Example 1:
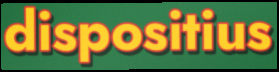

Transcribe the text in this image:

dispositius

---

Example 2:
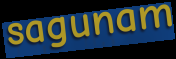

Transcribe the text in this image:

sagunam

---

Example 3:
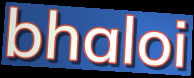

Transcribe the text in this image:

bhaloi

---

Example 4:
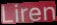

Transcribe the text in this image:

Liren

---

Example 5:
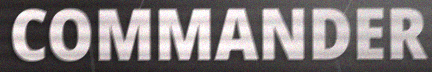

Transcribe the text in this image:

COMMANDER